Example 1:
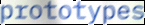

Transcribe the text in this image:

prototypes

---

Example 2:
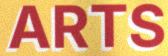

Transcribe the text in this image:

ARTS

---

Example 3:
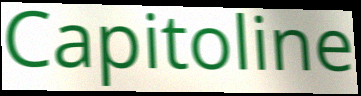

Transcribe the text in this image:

Capitoline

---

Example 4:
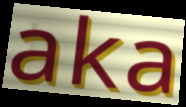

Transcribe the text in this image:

aka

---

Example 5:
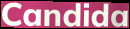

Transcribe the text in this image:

Candida